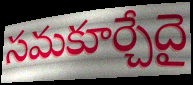
సమకూర్చేదై